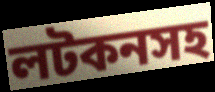
লটকনসহ